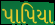
પાપિયા